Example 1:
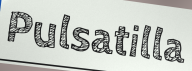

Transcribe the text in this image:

Pulsatilla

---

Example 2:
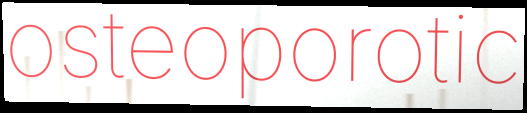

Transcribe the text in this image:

osteoporotic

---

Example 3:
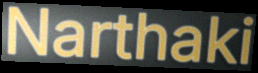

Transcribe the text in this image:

Narthaki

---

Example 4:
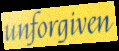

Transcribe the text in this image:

unforgiven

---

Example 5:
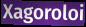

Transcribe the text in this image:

Xagoroloi